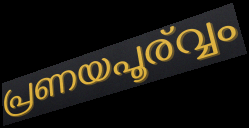
പ്രണയപൂര്വ്വം